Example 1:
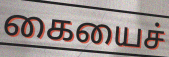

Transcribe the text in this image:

கையைச்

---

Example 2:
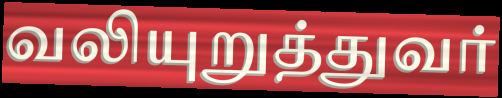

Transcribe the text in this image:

வலியுறுத்துவர்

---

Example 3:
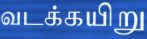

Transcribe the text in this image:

வடக்கயிறு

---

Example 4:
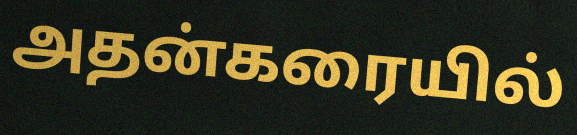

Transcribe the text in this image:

அதன்கரையில்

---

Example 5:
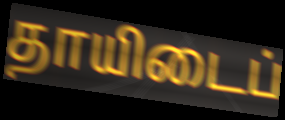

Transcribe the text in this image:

தாயிடைப்